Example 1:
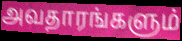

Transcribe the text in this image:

அவதாரங்களும்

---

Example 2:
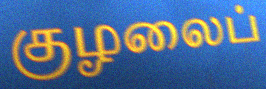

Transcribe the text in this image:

குழலைப்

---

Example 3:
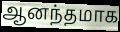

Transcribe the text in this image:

ஆனந்தமாக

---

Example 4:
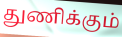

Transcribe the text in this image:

துணிக்கும்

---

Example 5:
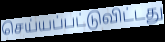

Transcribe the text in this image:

செய்யப்பட்டுவிட்டது